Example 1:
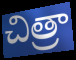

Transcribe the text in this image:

చిత్రా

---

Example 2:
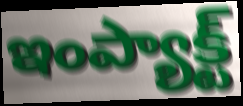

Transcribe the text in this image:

ఇంప్యాక్ట్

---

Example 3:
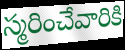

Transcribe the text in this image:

స్మరించేవారికి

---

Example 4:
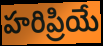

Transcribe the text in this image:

హరిప్రియే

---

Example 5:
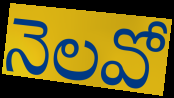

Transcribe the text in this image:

నెలవో